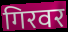
गिरवर